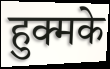
हुक्मके